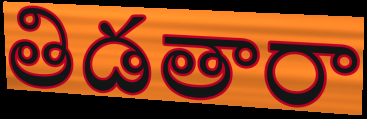
తిడతారా